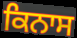
ਕਿਨਾਸ